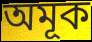
অমূক